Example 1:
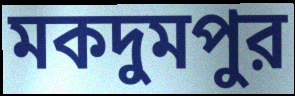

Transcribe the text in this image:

মকদুমপুর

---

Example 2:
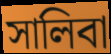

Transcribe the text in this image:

সালিবা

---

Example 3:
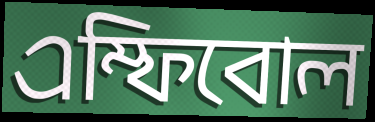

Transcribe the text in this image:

এম্ফিবোল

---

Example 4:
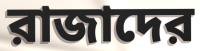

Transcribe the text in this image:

রাজাদের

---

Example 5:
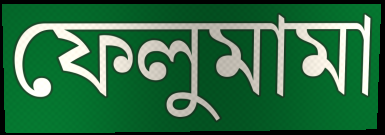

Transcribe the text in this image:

ফেলুমামা